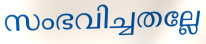
സംഭവിച്ചതല്ലേ